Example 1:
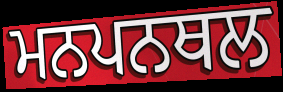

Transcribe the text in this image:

ਮਨਪਨਥਲ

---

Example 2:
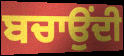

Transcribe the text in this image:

ਬਚਾਉਂਦੀ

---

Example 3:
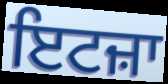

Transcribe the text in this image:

ਇਟਜ਼ਾ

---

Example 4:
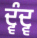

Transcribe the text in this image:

ਦ੍ਵੰਦ੍ਵ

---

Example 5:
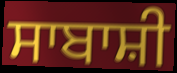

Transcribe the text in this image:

ਸਾਬਾਸ਼ੀ